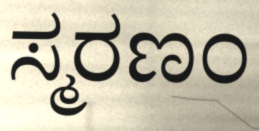
ಸ್ಮರಣಂ